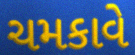
ચમકાવે